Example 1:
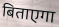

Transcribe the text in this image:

बिताएगा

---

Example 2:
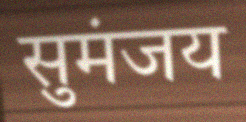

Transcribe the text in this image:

सुमंजय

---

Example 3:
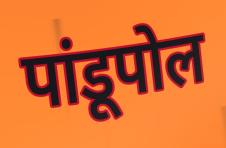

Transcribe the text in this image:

पांडूपोल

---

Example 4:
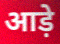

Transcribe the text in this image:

आड़े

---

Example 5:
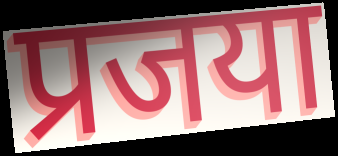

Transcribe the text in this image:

प्रजया